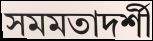
সমমতাদর্শী